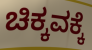
ಚಿಕ್ಕವಕ್ಕೆ